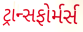
ટ્રાન્સફોર્મર્સ